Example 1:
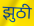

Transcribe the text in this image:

झुठी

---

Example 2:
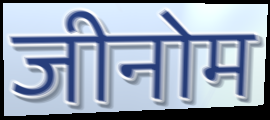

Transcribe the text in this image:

जीनोम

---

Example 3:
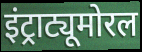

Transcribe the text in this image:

इंट्राट्यूमोरल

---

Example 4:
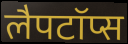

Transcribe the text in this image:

लैपटॉप्‍स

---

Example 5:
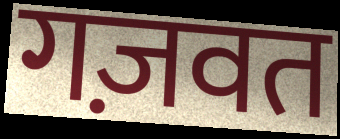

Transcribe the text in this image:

गज़वत